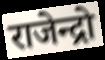
राजेन्द्रो